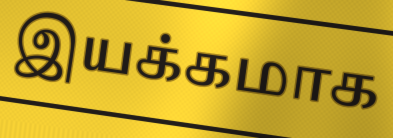
இயக்கமாக